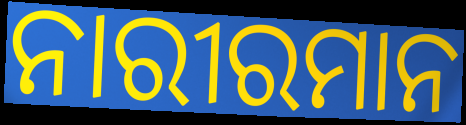
ନାରୀରମାନ